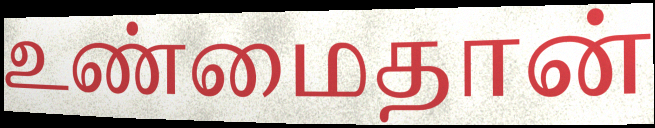
உண்மைதான்